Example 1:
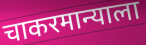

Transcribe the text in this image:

चाकरमान्याला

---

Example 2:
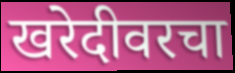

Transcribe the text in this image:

खरेदीवरचा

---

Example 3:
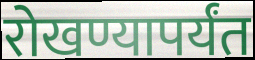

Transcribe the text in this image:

रोखण्यापर्यंत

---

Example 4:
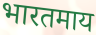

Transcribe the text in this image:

भारतमाय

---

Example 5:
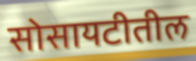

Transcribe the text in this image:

सोसायटीतील